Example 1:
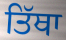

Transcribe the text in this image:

ਤਿੱਥਾ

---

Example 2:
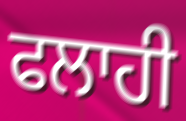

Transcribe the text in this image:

ਫਲਾਹੀ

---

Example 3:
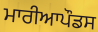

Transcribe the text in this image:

ਮਾਰੀਆਪੌਡਸ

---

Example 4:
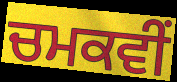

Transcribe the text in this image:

ਚਮਕਵੀਂ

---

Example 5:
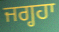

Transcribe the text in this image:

ਜਗ੍ਹਹਾ